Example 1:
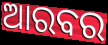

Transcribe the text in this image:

ଆରବର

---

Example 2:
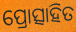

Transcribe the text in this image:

ପ୍ରୋତ୍ସାହିତ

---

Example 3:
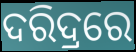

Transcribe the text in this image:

ଦରିଦ୍ରରେ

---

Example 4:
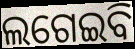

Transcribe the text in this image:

ଲଗେଇବି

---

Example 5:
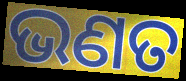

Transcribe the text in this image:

ଭଣତ